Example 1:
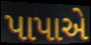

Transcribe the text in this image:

પાપાએ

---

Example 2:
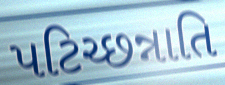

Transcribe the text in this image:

પટિચ્છન્નાતિ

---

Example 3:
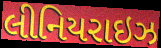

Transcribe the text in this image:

લીનિયરાઇઝ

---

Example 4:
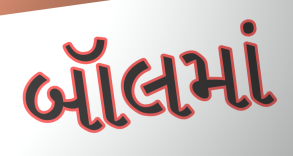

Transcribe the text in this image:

બૉલમાં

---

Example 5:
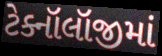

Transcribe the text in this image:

ટેક્નૉલૉજીમાં